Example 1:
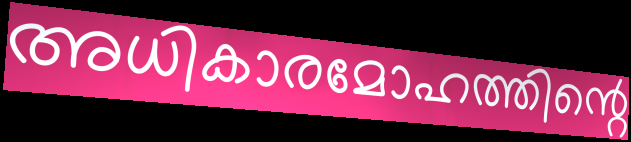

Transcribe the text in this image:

അധികാരമോഹത്തിന്റെ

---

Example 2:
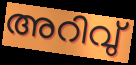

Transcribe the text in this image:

അറിവു്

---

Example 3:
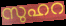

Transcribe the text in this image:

സുഹറ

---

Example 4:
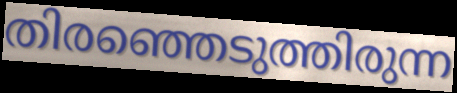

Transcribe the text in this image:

തിരഞ്ഞെടുത്തിരുന്ന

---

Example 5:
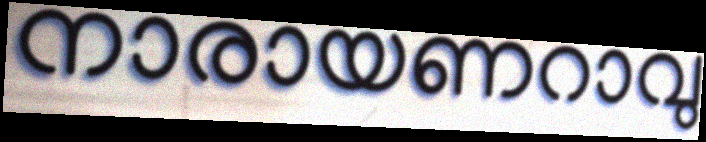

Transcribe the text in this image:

നാരായണറാവു